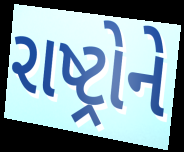
રાષ્ટ્રોને